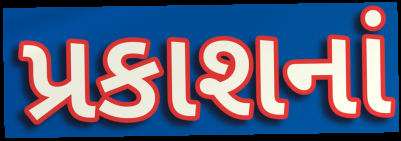
પ્રકાશનાં